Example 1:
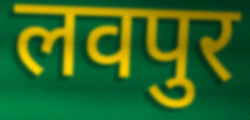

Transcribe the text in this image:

लवपुर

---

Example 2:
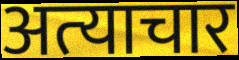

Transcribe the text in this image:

अत्‍याचार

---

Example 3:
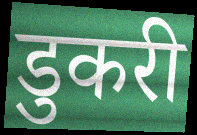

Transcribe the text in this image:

डुकरी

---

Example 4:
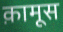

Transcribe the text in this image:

क़ामूस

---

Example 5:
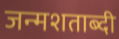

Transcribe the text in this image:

जन्मशताब्दी